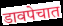
डावपेचात